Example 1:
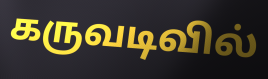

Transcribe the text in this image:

கருவடிவில்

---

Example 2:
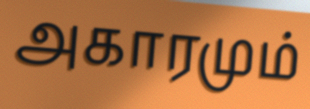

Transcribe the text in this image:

அகாரமும்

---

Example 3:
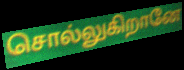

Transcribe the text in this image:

சொல்லுகிறானே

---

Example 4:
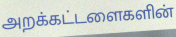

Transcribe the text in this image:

அறக்கட்டளைகளின்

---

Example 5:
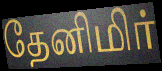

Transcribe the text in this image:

தேனிமிர்